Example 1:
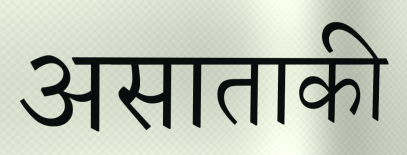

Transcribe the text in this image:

असाताकी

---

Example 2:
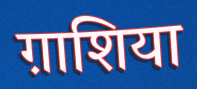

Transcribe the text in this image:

ग़ाशिया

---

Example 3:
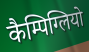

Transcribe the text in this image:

कैम्पिग्लियो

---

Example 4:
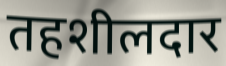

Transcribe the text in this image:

तहशीलदार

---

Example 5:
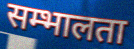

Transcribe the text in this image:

सम्भालता